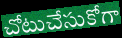
చోటుచేసుకోగా